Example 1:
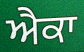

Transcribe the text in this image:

ਐਕਾ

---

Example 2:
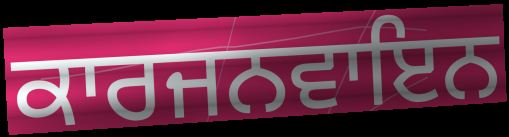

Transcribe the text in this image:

ਕਾਰਜਨਵਾਇਨ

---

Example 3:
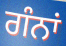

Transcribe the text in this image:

ਗੰਨਾਂ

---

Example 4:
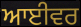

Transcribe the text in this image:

ਆਈਵਰ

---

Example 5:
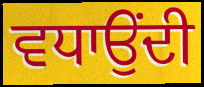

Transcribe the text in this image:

ਵਧਾਉਂਦੀ